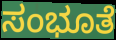
ಸಂಭೂತೆ